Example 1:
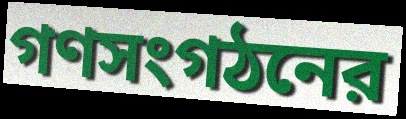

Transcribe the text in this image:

গণসংগঠনের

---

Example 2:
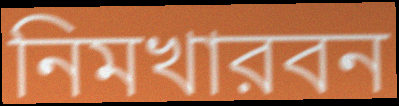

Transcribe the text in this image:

নিমখারবন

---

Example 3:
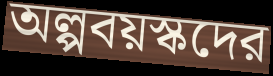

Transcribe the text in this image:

অল্পবয়স্কদের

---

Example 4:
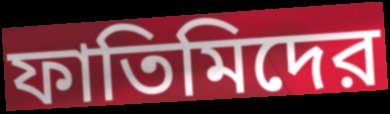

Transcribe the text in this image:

ফাতিমিদের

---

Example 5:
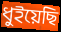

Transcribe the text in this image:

ধুইয়েছি